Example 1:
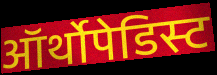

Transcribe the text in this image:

ऑर्थोपेडिस्ट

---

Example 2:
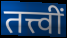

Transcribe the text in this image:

तत्त्वीं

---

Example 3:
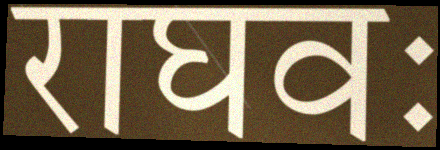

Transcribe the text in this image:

राघवः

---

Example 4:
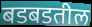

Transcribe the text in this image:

बडबडतील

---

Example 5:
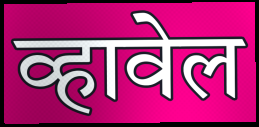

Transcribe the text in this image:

व्हावेल